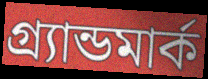
গ্র্যান্ডমার্ক